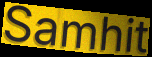
Samhit